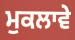
ਮੁਕਲਾਵੇ